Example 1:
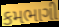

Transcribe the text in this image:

કમભાગી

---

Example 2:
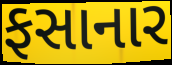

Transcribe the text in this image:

ફસાનાર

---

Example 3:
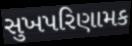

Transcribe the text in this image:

સુખપરિણામક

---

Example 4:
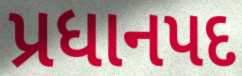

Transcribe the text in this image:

પ્રધાનપદ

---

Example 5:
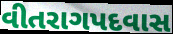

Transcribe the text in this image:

વીતરાગપદવાસ